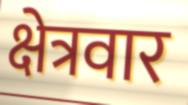
क्षेत्रवार